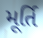
મૂર્તિ